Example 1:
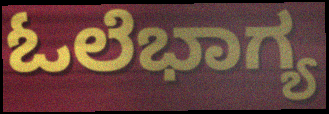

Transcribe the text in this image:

ಓಲೆಭಾಗ್ಯ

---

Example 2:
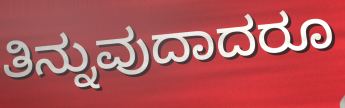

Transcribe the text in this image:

ತಿನ್ನುವುದಾದರೂ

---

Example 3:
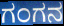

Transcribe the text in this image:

ಗಂಗನ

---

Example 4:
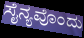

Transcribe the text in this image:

ಸೈನ್ಯವೊಂದು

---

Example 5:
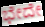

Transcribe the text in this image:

ಭೇದೇ